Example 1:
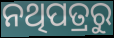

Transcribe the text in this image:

ନଥିପତ୍ରରୁ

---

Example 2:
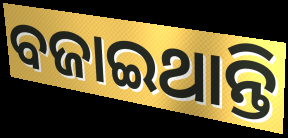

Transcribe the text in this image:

ବଜାଇଥାନ୍ତି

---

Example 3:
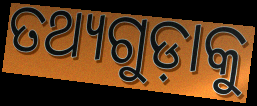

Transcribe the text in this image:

ତଥ୍ୟଗୁଡ଼ାକୁ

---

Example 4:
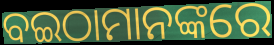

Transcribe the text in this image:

ବଇଠାମାନଙ୍କରେ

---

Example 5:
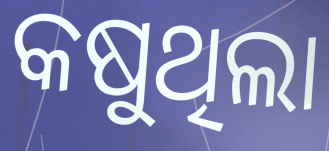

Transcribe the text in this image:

କଷୁଥିଲା